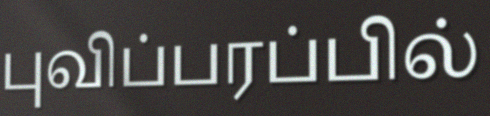
புவிப்பரப்பில்